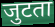
जुटता